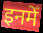
इनमेँ